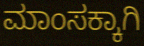
ಮಾಂಸಕ್ಕಾಗಿ